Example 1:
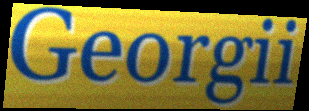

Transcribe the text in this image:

Georgii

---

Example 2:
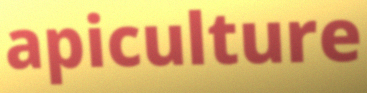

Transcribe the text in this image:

apiculture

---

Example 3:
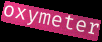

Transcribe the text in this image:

oxymeter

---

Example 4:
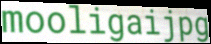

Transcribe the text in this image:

mooligaijpg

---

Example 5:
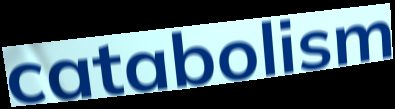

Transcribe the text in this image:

catabolism